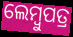
ଲେମ୍ବୁପତ୍ର